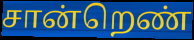
சான்றெண்